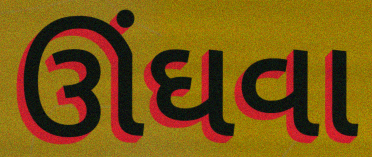
ઊંઘવા